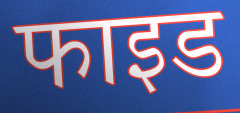
फाइड